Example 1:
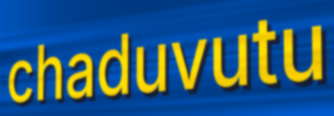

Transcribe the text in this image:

chaduvutu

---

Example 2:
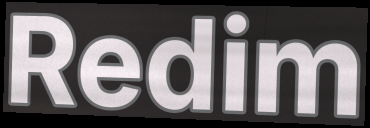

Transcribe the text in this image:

Redim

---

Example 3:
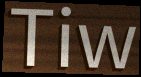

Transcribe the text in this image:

Tiw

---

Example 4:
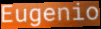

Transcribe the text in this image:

Eugenio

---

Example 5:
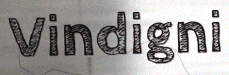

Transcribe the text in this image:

Vindigni